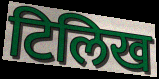
टिलिख